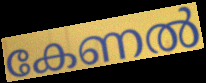
കേണൽ